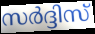
സർദ്ദിസ്